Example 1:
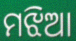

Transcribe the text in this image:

ମଝିଆ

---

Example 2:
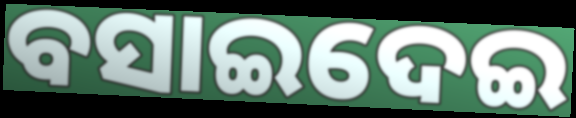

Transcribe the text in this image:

ବସାଇଦେଇ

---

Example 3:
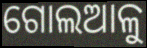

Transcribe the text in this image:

ଗୋଲଆଳୁ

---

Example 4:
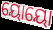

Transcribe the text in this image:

ୟୋୟୋ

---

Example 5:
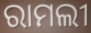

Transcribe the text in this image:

ରାମଲୀ